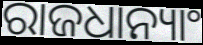
ରାଜଧାନ୍ୟାଂ